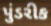
પુંડરીક